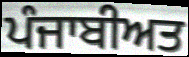
ਪੰਜਾਬੀਅਤ